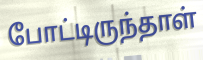
போட்டிருந்தாள்